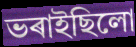
ভৰাইছিলো